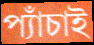
প্যাঁচাই